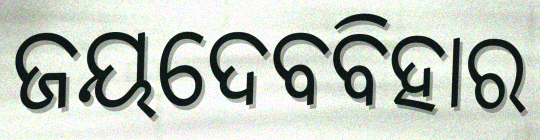
ଜୟଦେବବିହାର